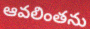
ఆవలింతను